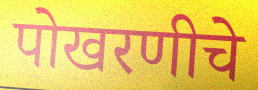
पोखरणीचे